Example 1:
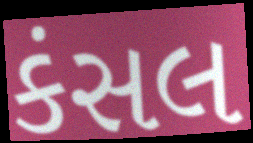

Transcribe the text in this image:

કંસલ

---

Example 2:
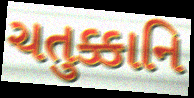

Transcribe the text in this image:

ચતુક્કાનિ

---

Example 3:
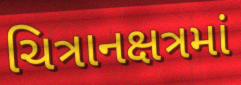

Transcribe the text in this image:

ચિત્રાનક્ષત્રમાં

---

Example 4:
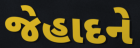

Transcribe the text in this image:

જેહાદને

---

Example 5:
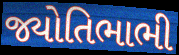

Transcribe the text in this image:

જ્યોતિભાભી